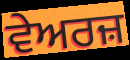
ਵੇਅਰਜ਼